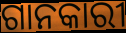
ଗାନକାରୀ